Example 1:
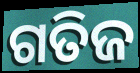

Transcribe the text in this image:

ଗତିଜ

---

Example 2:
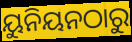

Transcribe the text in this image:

ୟୁନିୟନଠାରୁ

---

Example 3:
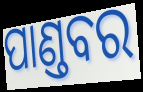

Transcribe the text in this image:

ପାଣ୍ଡବର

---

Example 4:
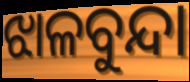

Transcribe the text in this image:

ଝାଳବୁନ୍ଦା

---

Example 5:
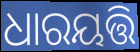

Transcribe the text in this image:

ଧାରୟତ୍ତି